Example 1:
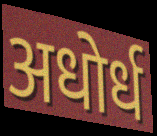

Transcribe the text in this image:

अधोर्ध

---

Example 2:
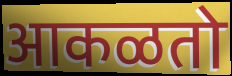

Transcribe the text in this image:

आकळतो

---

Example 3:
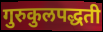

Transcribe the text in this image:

गुरुकुलपद्धती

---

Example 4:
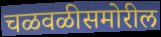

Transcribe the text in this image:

चळवळीसमोरील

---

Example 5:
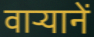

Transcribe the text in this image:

वार्‍यानें